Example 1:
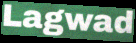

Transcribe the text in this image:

Lagwad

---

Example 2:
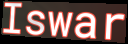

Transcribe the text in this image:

Iswar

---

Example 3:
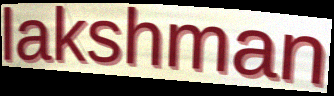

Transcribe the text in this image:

lakshman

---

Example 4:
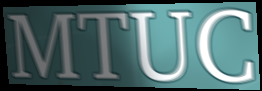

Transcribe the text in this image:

MTUC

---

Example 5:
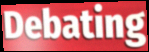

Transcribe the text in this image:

Debating